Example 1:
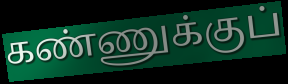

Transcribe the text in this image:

கண்ணுக்குப்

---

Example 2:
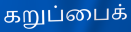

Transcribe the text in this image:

கறுப்பைக்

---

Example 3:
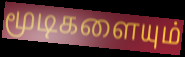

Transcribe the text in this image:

மூடிகளையும்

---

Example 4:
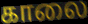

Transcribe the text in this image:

காலை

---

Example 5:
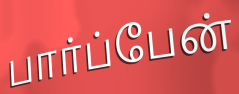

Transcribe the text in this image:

பார்ப்பேன்